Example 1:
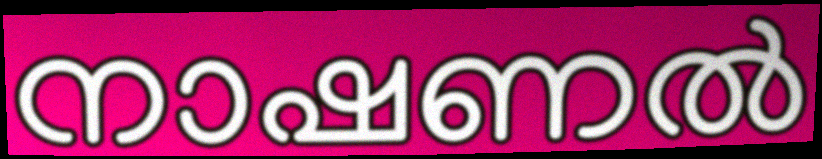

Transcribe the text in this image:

നാഷണൽ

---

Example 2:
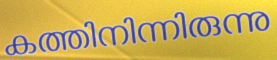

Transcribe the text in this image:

കത്തിനിന്നിരുന്നു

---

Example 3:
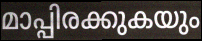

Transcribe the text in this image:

മാപ്പിരക്കുകയും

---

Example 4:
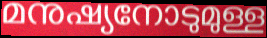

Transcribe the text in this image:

മനുഷ്യനോടുമുള്ള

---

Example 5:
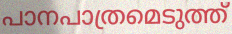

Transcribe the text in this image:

പാനപാത്രമെടുത്ത്